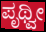
ಪೃಥ್ವೀ